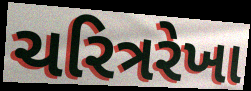
ચરિત્રરેખા